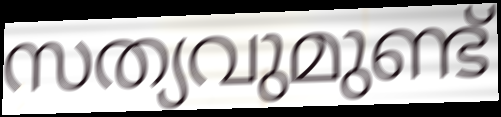
സത്യവുമുണ്ട്